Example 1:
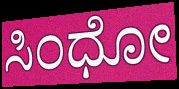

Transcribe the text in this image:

ಸಿಂಧೋ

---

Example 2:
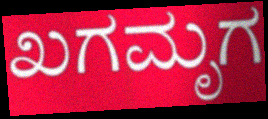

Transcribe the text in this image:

ಖಗಮೃಗ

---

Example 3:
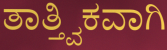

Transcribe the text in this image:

ತಾತ್ತ್ವಿಕವಾಗಿ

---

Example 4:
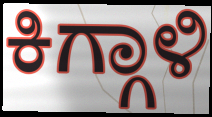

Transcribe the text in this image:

ಕಿಗ್ಗಾಳಿ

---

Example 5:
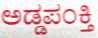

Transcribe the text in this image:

ಅಡ್ಡಪಂಕ್ತಿ